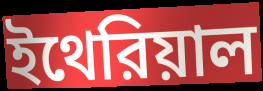
ইথেরিয়াল